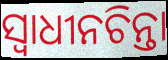
ସ୍ୱାଧୀନଚିନ୍ତା